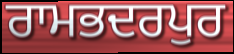
ਰਾਮਭਦਰਪੁਰ